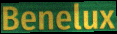
Benelux